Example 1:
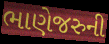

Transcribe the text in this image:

ભાણેજરુની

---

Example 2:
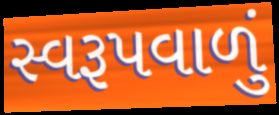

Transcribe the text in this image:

સ્વરૂપવાળું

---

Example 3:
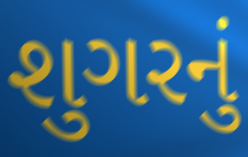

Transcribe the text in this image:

શુગરનું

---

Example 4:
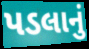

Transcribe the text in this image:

પડલાનું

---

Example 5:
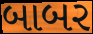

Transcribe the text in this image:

બાબર